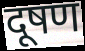
दूषण